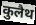
कुलैथ